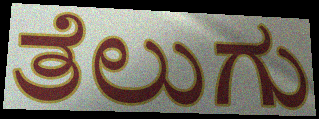
ತೆಲುಗು